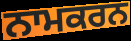
ਨਾਮਕਰਨ